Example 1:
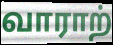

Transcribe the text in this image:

வாராற்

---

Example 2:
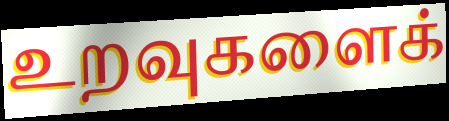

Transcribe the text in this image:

உறவுகளைக்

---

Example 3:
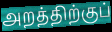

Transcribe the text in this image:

அறத்திற்குப்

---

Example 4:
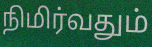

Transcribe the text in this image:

நிமிர்வதும்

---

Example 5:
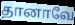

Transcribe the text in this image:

தானாவே